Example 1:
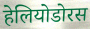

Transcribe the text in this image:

हेलियोडोरस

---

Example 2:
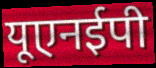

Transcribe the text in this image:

यूएनईपी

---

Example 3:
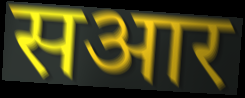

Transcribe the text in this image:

सआर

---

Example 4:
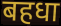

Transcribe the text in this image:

बहधा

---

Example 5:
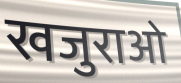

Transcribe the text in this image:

खजुराओ